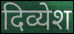
दिव्येश